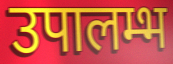
उपालम्भ